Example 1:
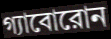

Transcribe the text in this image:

গ্যাবোরোন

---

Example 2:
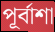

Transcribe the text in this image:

পূর্বাশা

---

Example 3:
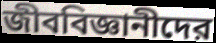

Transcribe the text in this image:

জীববিজ্ঞানীদের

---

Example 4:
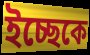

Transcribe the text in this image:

ইচ্ছেকে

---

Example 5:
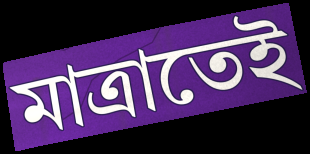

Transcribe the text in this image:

মাত্রাতেই